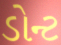
ડોન્ટ